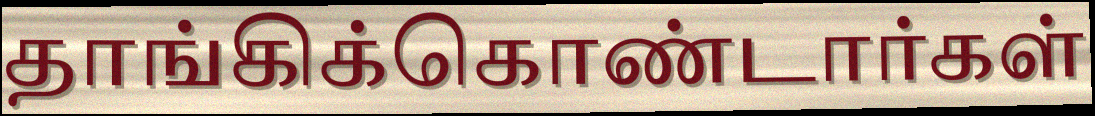
தாங்கிக்கொண்டார்கள்